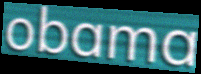
obama